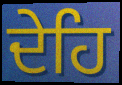
ਦੇਹਿ